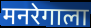
मनरेगाला